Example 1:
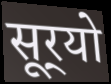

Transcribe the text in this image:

सूर्यो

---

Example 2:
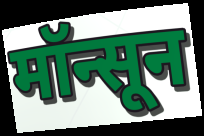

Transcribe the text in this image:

मॉन्सून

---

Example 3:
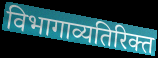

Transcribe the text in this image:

विभागाव्यतिरिक्त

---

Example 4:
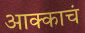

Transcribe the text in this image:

आक्काचं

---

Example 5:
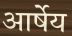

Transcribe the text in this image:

आर्षेय